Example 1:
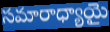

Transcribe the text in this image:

సమారాధ్యాయై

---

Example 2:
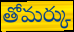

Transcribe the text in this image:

తోమర్కు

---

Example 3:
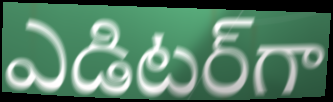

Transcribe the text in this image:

ఎడిటర్‌గా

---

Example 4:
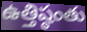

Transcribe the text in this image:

ఉత్తిష్ఠంతు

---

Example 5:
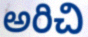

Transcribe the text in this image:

అరిచి